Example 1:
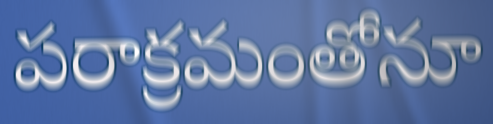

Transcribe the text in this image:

పరాక్రమంతోనూ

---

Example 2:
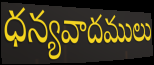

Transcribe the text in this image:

ధన్యవాదములు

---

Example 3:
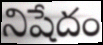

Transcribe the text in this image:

నిషేదం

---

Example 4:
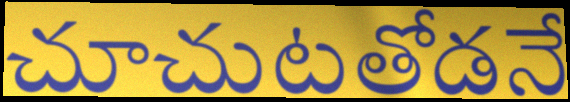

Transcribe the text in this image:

చూచుటతోడనే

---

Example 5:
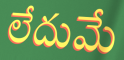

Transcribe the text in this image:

లేదుమే